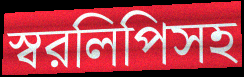
স্বরলিপিসহ